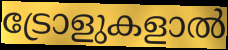
ട്രോളുകളാൽ